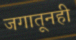
जगातूनही